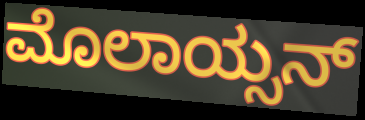
ಮೊಲಾಯ್ಸನ್